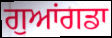
ਗੁਆਂਗਡਾ